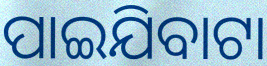
ପାଇଯିବାଟା